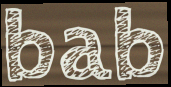
bab